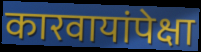
कारवायांपेक्षा